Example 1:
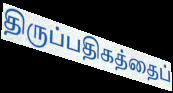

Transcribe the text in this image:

திருப்பதிகத்தைப்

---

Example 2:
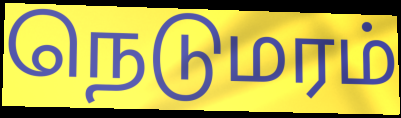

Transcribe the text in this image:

நெடுமரம்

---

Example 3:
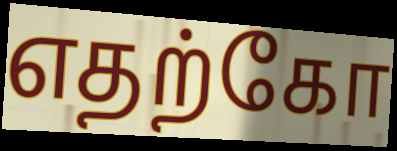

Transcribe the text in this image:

எதற்கோ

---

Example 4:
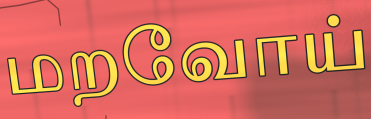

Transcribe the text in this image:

மறவோய்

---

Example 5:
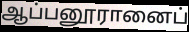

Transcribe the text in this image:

ஆப்பனூரானைப்